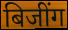
बिजींग